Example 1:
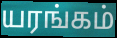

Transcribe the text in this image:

யரங்கம்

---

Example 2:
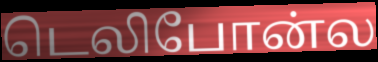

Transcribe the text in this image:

டெலிபோன்ல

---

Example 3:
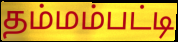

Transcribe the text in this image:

தம்மம்பட்டி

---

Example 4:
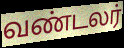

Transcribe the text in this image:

வண்டலர்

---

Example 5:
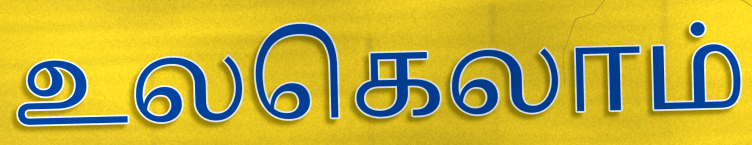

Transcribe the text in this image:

உலகெலாம்